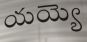
యయ్యె